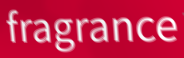
fragrance